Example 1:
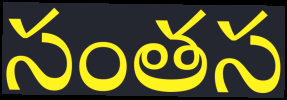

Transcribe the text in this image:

సంతస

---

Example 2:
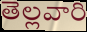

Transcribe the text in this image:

తెల్లవారి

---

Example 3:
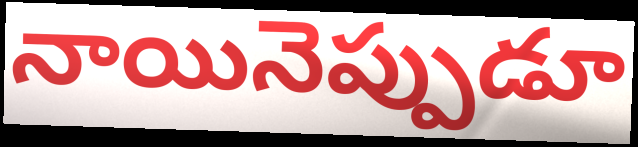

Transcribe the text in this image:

నాయినెప్పుడూ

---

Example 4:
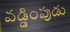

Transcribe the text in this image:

వడ్డింపుడు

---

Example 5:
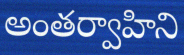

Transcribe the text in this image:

అంతర్వాహిని